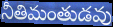
నీతిమంతుడవు